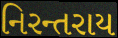
નિરન્તરાય